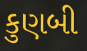
કુણબી